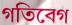
গতিবেগ